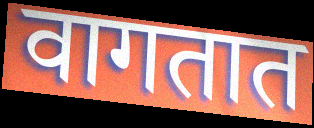
वागतात